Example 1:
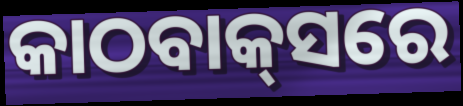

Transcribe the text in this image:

କାଠବାକ୍‍ସରେ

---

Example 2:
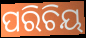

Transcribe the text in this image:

ପରିଚିୟ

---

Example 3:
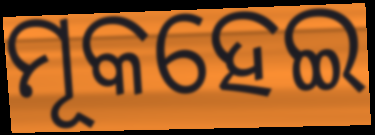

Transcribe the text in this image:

ମୂକହେଇ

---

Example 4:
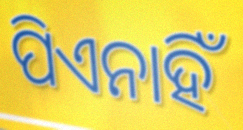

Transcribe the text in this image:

ପିଏନାହିଁ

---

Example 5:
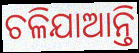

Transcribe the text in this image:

ଚଳିଯାଆନ୍ତି